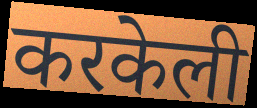
करकेली